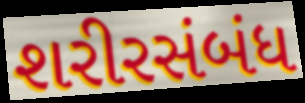
શરીરસંબંધ